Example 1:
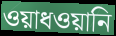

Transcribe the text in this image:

ওয়াধওয়ানি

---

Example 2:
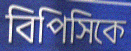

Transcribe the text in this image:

বিপিসিকে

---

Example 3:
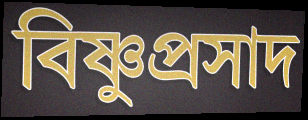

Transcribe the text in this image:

বিষ্ণুপ্রসাদ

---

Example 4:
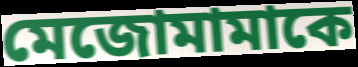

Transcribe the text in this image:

মেজোমামাকে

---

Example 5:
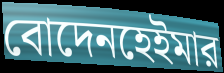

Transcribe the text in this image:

বোদেনহেইমার